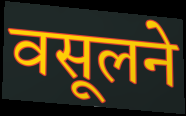
वसूलने